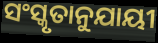
ସଂସ୍କୃତାନୁଯାୟୀ